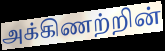
அக்கிணற்றின்